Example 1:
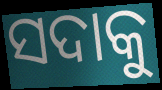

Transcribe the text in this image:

ସଦାକୁ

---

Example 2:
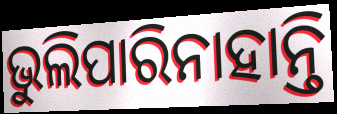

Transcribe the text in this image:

ଭୁଲିପାରିନାହାନ୍ତି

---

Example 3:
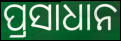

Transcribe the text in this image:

ପ୍ରସାଧାନ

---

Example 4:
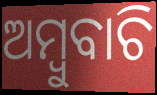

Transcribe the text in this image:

ଅମ୍ବୁବାଚି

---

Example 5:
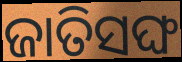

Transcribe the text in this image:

ଜାତିସଙ୍ଘ